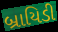
બ્રાયિડી